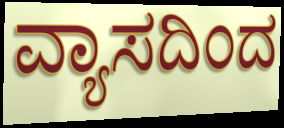
ವ್ಯಾಸದಿಂದ